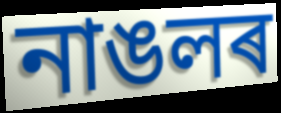
নাঙলৰ